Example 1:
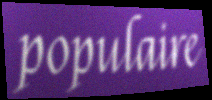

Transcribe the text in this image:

populaire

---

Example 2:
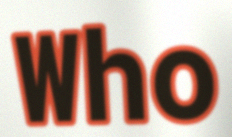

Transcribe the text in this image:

Who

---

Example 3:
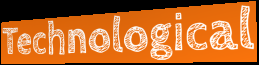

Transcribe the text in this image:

Technological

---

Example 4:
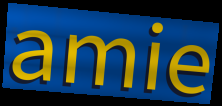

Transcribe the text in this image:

amie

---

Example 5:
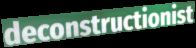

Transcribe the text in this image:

deconstructionist